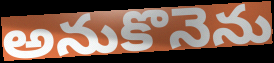
అనుకొనెను